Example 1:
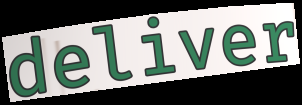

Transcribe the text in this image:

deliver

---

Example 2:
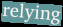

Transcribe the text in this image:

relying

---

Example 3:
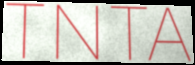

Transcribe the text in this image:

TNTA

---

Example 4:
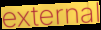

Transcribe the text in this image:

external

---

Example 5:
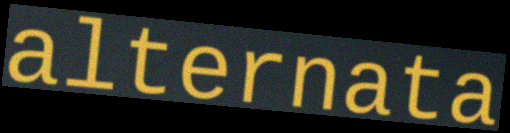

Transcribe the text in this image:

alternata